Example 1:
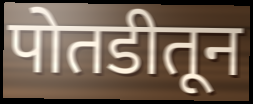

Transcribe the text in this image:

पोतडीतून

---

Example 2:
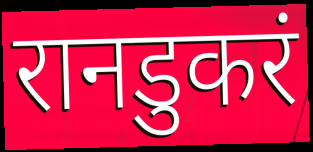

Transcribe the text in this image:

रानडुकरं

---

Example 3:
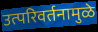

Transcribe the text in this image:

उत्परिवर्तनामुळे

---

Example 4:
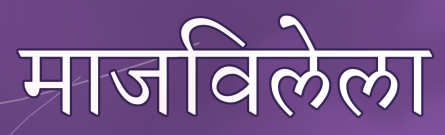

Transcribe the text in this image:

माजविलेला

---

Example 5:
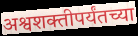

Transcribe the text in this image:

अश्वशक्तीपर्यंतच्या